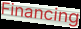
Financing